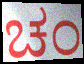
ಚಂ